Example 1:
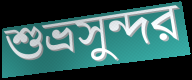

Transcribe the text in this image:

শুভ্রসুন্দর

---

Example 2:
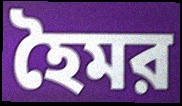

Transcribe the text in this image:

হৈমর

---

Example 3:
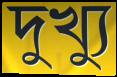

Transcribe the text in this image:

দুখ্যু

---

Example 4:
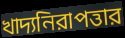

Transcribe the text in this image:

খাদ্যনিরাপত্তার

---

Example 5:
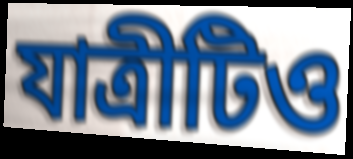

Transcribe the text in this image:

যাত্রীটিও